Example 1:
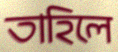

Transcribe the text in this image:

তাহিলে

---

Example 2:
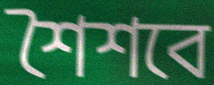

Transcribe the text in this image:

শৈশবে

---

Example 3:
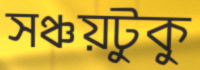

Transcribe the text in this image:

সঞ্চয়টুকু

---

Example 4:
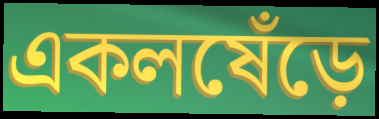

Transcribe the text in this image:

একলষেঁড়ে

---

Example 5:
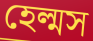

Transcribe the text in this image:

হেল্মস